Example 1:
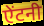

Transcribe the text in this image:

ऐंटनी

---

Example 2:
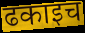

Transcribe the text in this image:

ढकाइच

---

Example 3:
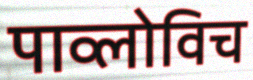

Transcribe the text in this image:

पाव्लोविच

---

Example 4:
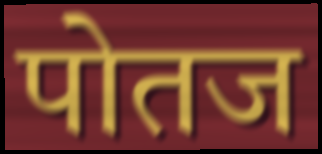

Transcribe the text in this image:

पोतज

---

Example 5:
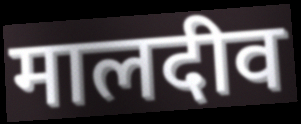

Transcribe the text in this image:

मालदीव